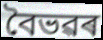
বৈভৱৰ